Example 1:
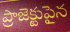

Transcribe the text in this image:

ప్రాజెక్టుపైన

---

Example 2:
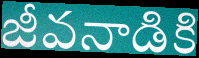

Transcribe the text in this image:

జీవనాడికి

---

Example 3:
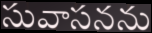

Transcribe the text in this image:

సువాసనను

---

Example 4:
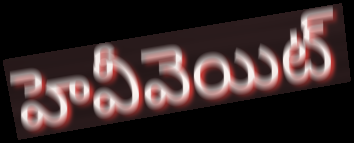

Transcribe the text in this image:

హెవీవెయిట్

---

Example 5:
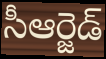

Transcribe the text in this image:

సీఆర్జెడ్